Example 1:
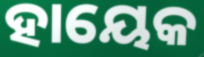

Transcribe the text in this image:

ହାୟେକ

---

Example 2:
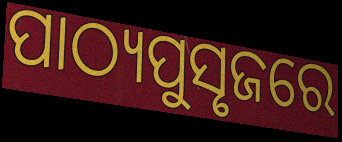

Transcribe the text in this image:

ପାଠ୍ୟପୁସୃଜରେ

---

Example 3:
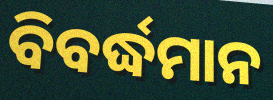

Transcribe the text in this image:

ବିବର୍ଦ୍ଧମାନ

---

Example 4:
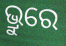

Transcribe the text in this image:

ଭ୍ରୁରେ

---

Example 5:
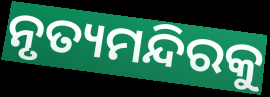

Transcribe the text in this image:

ନୃତ୍ୟମନ୍ଦିରକୁ